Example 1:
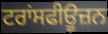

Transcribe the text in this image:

ਟਰਾਂਸਫੀਊਜ਼ਨ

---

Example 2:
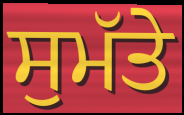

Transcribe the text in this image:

ਸੁਮੱਤੇ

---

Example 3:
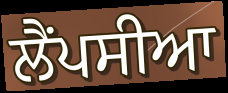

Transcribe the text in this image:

ਲੈਂਪਸੀਆ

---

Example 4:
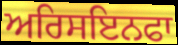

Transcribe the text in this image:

ਅਰਿਸਇਨਫਾ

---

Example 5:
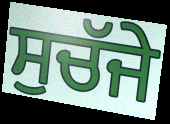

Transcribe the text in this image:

ਸੁਚੱਜੇ